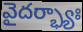
వైదర్భ్యాః